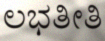
ಲಭತೀತಿ